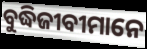
ବୁଦ୍ଧିଜୀବୀମାନେ